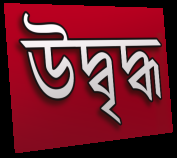
উদ্বৃদ্ধ